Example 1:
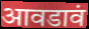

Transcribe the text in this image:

आवडावं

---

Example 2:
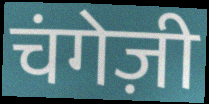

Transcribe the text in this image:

चंगेज़ी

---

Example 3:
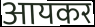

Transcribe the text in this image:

आयकर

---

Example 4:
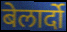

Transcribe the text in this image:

बेलार्दो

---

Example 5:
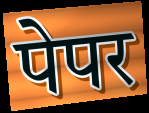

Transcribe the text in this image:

पेपर